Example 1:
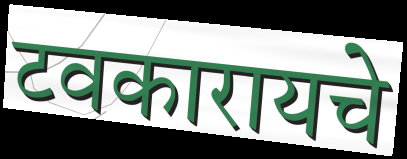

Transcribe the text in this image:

टवकारायचे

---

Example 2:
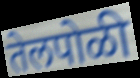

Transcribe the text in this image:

तेलपोळी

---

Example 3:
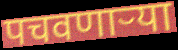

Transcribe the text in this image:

पचवणाऱ्या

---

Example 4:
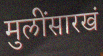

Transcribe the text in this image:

मुलींसारखं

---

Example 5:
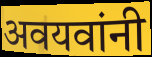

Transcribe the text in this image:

अवयवांनी